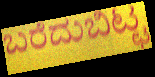
ಬರೆದುಬಿಟ್ಟ